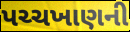
પચ્ચખાણની